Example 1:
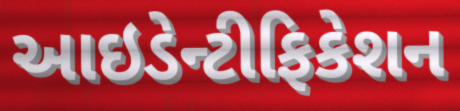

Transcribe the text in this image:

આઇડેન્ટીફિકેશન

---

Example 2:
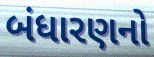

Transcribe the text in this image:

બંધારણનો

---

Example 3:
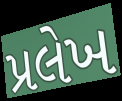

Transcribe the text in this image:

પ્રલેખ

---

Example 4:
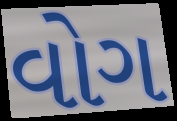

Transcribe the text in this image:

વોગ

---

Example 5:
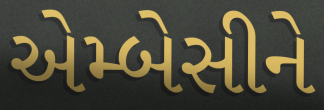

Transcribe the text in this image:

એમ્બેસીને